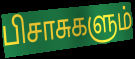
பிசாசுகளும்